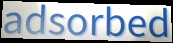
adsorbed